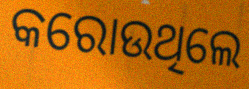
କରୋଉଥିଲେ